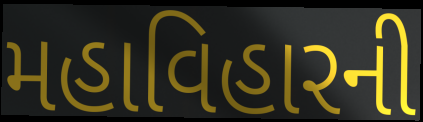
મહાવિહારની